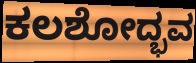
ಕಲಶೋದ್ಭವ